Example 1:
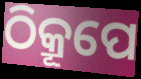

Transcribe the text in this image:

ଠିକ୍ରୂପେ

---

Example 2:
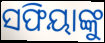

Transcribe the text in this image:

ସଫିୟାଙ୍କୁ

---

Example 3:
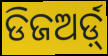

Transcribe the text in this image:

ଡିଜଅର୍ଡ଼୍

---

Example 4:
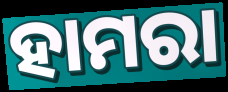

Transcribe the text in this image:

ହାମରା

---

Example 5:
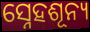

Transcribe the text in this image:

ସ୍ନେହଶୂନ୍ୟ